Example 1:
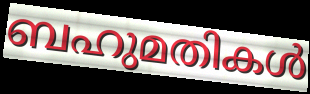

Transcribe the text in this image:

ബഹുമതികൾ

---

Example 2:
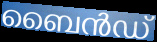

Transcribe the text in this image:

ബൈൻഡ്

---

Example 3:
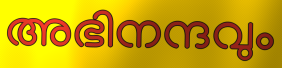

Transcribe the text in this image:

അഭിനന്ദവും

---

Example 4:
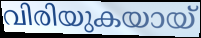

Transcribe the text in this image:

വിരിയുകയായ്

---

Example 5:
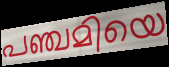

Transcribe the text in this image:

പഞ്ചമിയെ